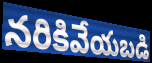
నరికివేయబడి